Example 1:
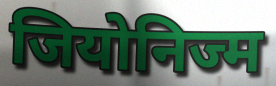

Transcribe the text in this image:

जियोनिज्म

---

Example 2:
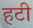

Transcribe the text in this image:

हटी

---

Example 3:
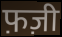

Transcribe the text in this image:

फ़ज़ी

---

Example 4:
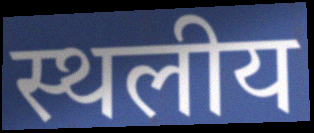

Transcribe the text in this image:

स्थलीय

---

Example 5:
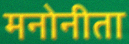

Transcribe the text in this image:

मनोनीता